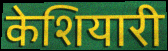
केशियारी